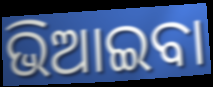
ଭିଆଇବା